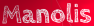
Manolis